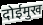
दोईमुख